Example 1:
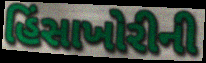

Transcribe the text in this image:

હિંસાખોરીની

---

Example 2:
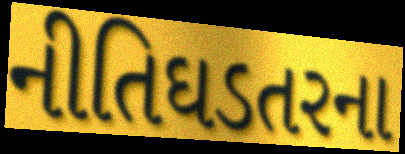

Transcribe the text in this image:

નીતિઘડતરના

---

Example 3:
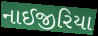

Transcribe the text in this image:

નાઈજીરિયા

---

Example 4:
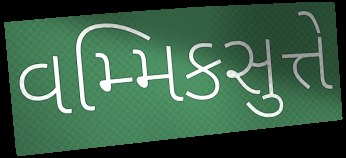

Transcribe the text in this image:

વમ્મિકસુત્તે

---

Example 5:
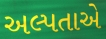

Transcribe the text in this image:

અલ્પતાએ